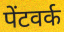
पेंटवर्क